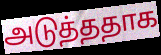
அடுத்ததாக